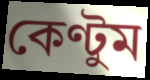
কেণ্টুম